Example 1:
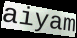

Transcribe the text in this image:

aiyam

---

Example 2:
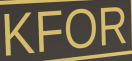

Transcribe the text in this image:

KFOR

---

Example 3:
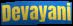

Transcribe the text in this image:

Devayani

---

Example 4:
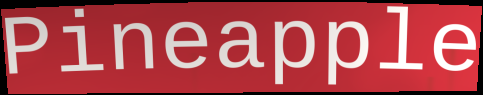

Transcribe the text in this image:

Pineapple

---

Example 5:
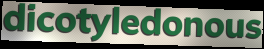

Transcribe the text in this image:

dicotyledonous